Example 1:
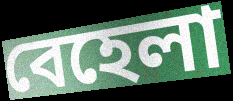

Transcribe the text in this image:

বেহেলা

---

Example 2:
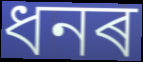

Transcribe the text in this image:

ধনৰ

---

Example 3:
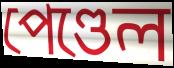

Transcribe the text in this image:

পেণ্ডেল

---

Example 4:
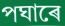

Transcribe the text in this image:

পঘাৰে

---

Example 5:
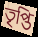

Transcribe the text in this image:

তৃপ্তি